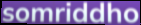
somriddho